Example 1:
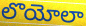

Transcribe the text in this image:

లొయోలా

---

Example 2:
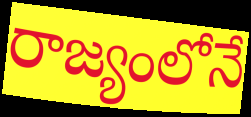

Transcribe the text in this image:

రాజ్యంలోనే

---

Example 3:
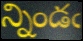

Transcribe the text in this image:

న్నిండఁ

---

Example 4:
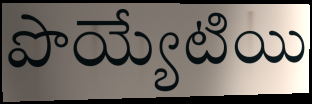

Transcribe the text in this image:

పొయ్యేటియి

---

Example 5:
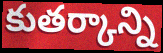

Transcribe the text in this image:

కుతర్కాన్ని